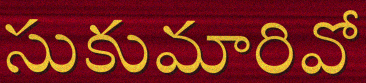
సుకుమారివో